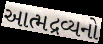
આત્મદ્રવ્યનો